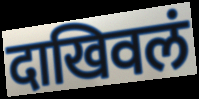
दाखिवलं